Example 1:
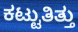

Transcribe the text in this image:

ಕಟ್ಟುತಿತ್ತು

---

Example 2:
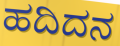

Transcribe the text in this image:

ಹದಿದನ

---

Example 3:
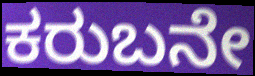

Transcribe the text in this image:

ಕರುಬನೇ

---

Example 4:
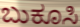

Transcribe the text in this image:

ಬುಕೂಸಿ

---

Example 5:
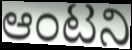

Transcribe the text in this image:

ಆಂಟನಿ